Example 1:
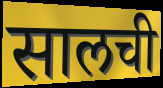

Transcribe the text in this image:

सालची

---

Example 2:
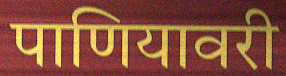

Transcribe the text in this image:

पाणियावरी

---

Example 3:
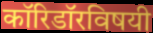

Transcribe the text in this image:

कॉरिडॉरविषयी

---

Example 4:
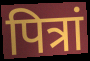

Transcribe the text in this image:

पित्रां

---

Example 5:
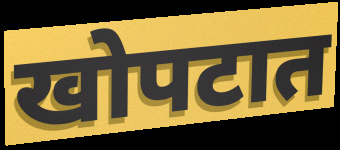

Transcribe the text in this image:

खोपटात